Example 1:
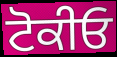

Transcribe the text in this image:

ਟੋਕੀਓ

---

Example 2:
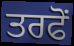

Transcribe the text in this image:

ਤਰਫੋਂ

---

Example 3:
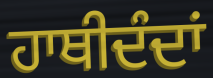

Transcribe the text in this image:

ਹਾਥੀਦੰਦਾਂ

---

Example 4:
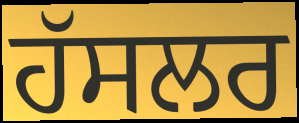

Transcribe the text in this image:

ਹੱਸਲਰ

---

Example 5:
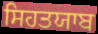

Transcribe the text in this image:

ਸਿਹਤਯਾਬ